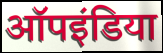
ऑपइंडिया